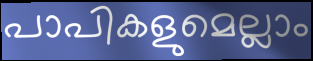
പാപികളുമെല്ലാം